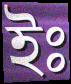
ইঃ